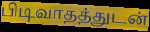
பிடிவாதத்துடன்